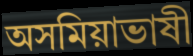
অসমিয়াভাষী